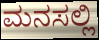
ಮನಸಲ್ಲಿ